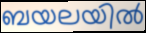
ബയലയിൽ